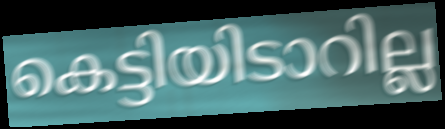
കെട്ടിയിടാറില്ല